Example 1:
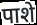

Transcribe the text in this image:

पाशे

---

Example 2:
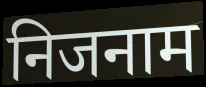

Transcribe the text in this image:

निजनाम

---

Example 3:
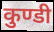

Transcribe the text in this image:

कुण्डी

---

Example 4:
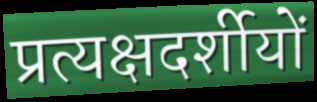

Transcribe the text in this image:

प्रत्यक्षदर्शीयों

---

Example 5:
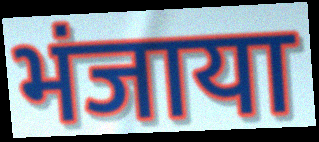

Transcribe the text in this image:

भंजाया